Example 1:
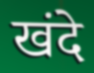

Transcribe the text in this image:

खंदे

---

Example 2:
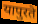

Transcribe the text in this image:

यापुरते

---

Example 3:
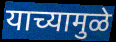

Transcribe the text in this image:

याच्यामुळे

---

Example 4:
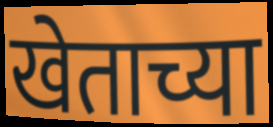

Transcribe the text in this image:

खेताच्या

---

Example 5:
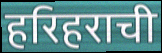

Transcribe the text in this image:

हरिहराची